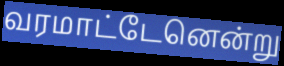
வரமாட்டேனென்று